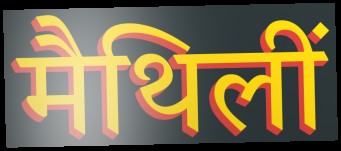
मैथिलीं